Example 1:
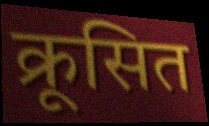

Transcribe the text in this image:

क्रूसित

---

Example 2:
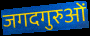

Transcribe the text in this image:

जगदगुरुओं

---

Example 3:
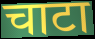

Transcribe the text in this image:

चाटा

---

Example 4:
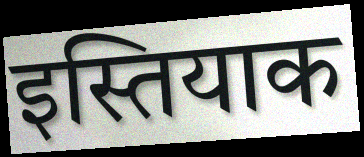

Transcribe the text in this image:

इस्तियाक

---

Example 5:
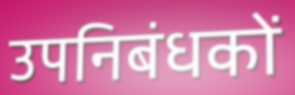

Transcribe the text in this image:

उपनिबंधकों